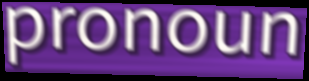
pronoun